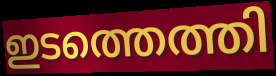
ഇടത്തെത്തി